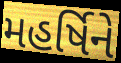
મહર્ષિને